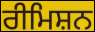
ਰੀਮਿਸ਼ਨ